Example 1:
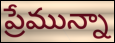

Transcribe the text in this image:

ప్రేమున్నా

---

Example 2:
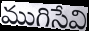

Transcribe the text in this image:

ముగిసేవి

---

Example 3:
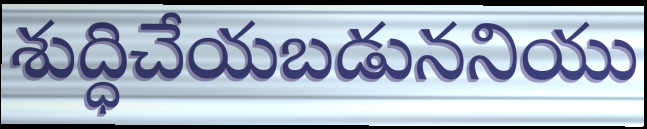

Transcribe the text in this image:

శుద్ధిచేయబడుననియు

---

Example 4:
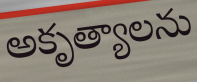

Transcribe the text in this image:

అకృత్యాలను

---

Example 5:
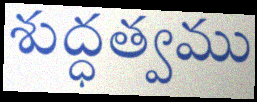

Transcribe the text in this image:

శుద్ధత్వము